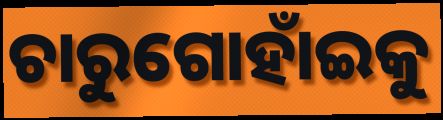
ଚାରୁଗୋହାଁଇକୁ